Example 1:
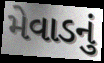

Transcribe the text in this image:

મેવાડનું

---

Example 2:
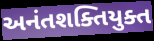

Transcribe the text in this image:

અનંતશક્તિયુક્ત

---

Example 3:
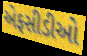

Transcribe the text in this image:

એફસીડીઓ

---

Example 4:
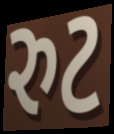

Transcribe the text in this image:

રુટ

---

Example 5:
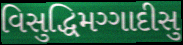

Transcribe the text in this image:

વિસુદ્ધિમગ્ગાદીસુ